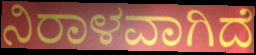
ನಿರಾಳವಾಗಿದೆ